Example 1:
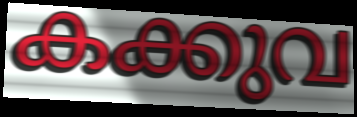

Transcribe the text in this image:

കക്കുവ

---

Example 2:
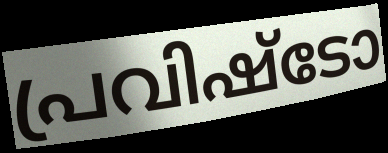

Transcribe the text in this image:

പ്രവിഷ്ടോ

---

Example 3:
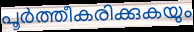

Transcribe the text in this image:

പൂർത്തീകരിക്കുകയും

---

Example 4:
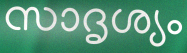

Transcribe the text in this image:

സാദൃശ്യം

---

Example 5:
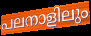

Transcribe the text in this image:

പലനാളിലും